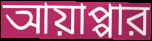
আয়াপ্পার